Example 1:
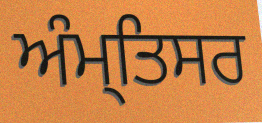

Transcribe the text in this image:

ਅੰਮ੍ਤਿਸਰ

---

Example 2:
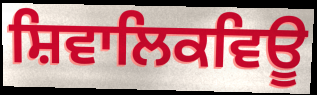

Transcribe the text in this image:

ਸ਼ਿਵਾਲਿਕਵਿਊ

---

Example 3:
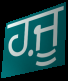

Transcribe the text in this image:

ਹ਼ਜੂ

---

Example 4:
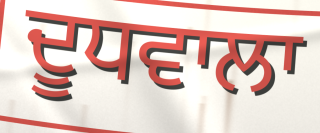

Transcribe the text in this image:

ਦੂਧਵਾਲਾ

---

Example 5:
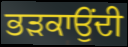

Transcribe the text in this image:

ਭੜਕਾਉਂਦੀ